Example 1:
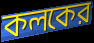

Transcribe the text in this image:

কলকের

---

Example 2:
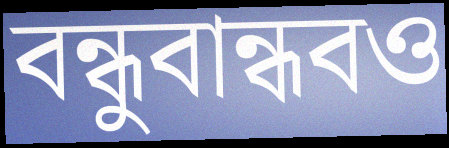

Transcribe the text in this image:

বন্ধুবান্ধবও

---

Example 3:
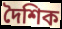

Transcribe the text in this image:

দৈশিক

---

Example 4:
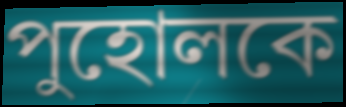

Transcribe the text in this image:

পুহোলকে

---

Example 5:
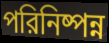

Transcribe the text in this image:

পরিনিষ্পন্ন